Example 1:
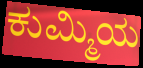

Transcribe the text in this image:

ಕುಮ್ಮಿಯ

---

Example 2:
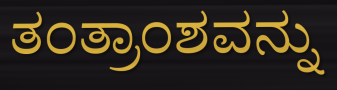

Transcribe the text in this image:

ತಂತ್ರಾಂಶವನ್ನು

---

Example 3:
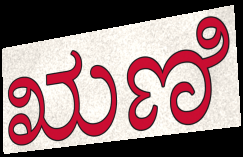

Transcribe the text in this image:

ಋಣಿ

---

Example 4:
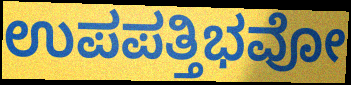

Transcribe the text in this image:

ಉಪಪತ್ತಿಭವೋ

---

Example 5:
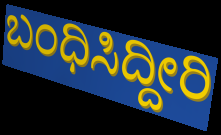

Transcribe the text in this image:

ಬಂಧಿಸಿದ್ದೀರಿ